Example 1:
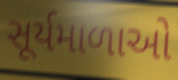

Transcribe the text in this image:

સૂર્યમાળાઓ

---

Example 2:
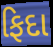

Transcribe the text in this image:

ફિદા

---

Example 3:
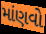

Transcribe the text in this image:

માંણવો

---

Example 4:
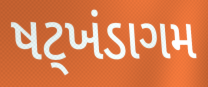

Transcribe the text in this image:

ષટ્ખંડાગમ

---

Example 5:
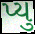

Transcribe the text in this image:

પ્યુ